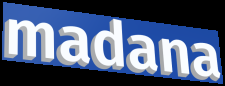
madana